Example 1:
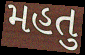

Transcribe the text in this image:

મહતુ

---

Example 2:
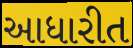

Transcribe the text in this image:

આધારીત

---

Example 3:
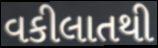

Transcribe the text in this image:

વકીલાતથી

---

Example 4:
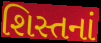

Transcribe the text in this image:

શિસ્તનાં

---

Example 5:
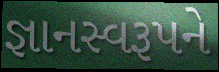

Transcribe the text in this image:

જ્ઞાનસ્વરૂપને